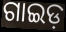
ଗାଇଡ଼